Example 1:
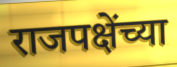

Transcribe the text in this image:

राजपक्षेंच्या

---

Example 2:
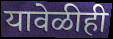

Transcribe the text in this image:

यावेळीही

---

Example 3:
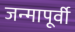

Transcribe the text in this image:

जन्मापूर्वी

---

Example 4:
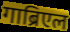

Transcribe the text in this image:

गाब्रिएल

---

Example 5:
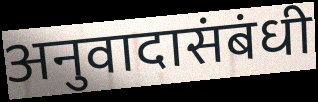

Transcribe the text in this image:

अनुवादासंबंधी